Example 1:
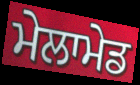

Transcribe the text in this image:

ਮੇਲਾਮੇਡ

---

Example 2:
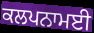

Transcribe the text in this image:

ਕਲਪਨਾਮਈ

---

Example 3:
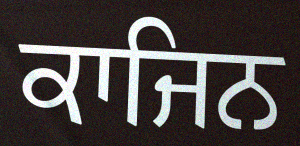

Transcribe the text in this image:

ਕਾਜਿਨ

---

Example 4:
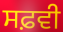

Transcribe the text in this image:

ਸਫ਼ਵੀ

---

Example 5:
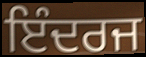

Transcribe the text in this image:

ਇੰਦਰਜ